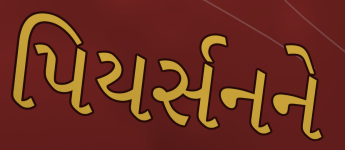
પિયર્સનને